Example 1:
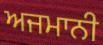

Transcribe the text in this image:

ਅਜਮਾਨੀ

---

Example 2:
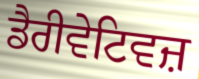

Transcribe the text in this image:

ਡੈਰੀਵੇਟਿਵਜ਼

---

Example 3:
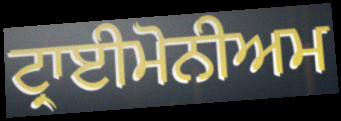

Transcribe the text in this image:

ਟ੍ਰਾਈਮੋਨੀਅਮ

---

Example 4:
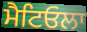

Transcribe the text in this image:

ਮੈਟਿਓਲਾ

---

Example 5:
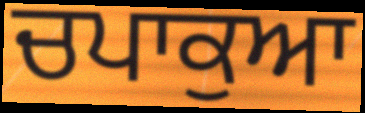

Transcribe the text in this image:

ਚਪਾਕੁਆ